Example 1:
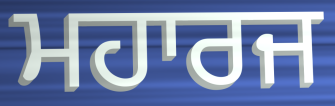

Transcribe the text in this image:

ਮਹਾਰਜ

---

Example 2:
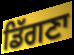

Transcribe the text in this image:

ਡਿੱਗਣਾ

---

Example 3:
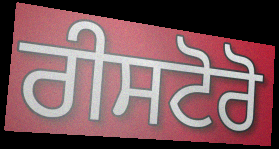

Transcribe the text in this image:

ਰੀਸਟੋਰੋ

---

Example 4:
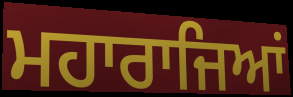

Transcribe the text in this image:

ਮਹਾਰਾਜਿਆਂ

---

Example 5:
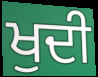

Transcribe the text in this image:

ਖੁਦੀ